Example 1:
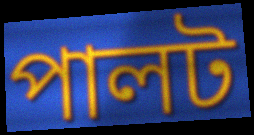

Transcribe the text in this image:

পালট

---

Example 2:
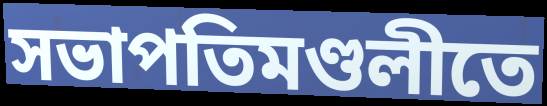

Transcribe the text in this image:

সভাপতিমণ্ডলীতে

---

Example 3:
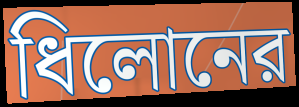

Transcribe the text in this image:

ধিলোনের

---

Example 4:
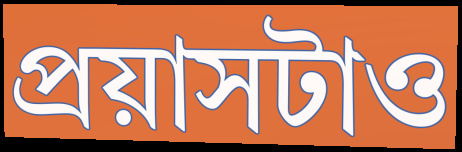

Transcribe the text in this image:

প্রয়াসটাও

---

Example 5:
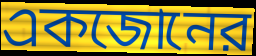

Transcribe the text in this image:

একজোনের